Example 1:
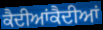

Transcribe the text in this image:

ਕੈਦੀਆਂਕੈਦੀਆਂ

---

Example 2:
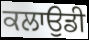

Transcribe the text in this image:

ਕਲਾਉਡੀ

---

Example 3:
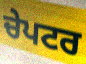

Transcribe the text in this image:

ਚੇਪਟਰ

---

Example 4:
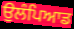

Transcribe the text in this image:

ਉਲੰਪਿਆਡ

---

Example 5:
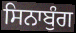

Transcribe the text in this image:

ਸਿਨਾਬੁੰਗ